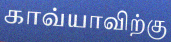
காவ்யாவிற்கு